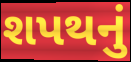
શપથનું